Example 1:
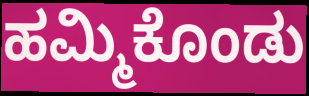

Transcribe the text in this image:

ಹಮ್ಮಿಕೊಂಡು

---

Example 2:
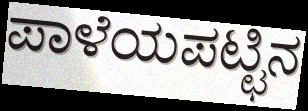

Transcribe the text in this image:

ಪಾಳೆಯಪಟ್ಟಿನ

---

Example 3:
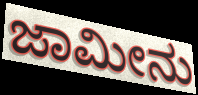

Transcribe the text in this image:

ಜಾಮೀನು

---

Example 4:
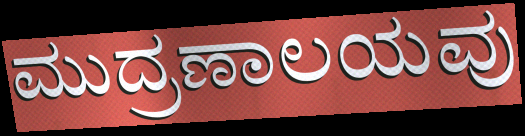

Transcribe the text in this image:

ಮುದ್ರಣಾಲಯವು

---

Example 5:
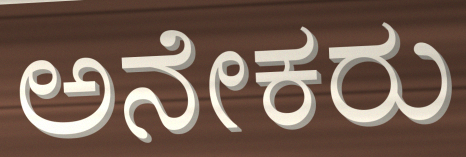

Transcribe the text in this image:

ಅನೇಕರು